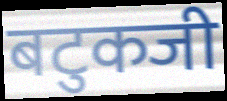
बटुकजी